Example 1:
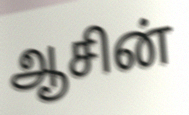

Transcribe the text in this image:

ஆசின்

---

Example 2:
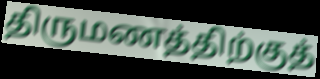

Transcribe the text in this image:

திருமணத்திற்குத்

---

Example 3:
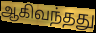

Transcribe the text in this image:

ஆகிவந்தது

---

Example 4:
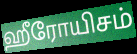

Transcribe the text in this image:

ஹீரோயிசம்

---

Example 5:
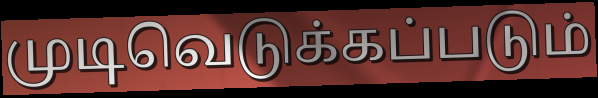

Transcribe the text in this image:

முடிவெடுக்கப்படும்